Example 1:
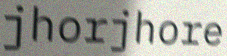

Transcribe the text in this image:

jhorjhore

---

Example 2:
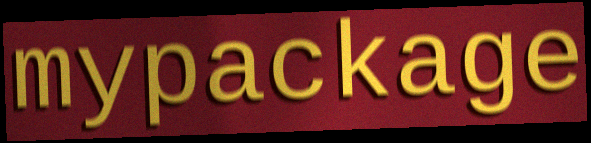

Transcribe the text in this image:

mypackage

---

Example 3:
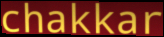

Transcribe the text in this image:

chakkar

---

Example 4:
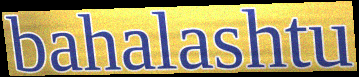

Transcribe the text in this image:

bahalashtu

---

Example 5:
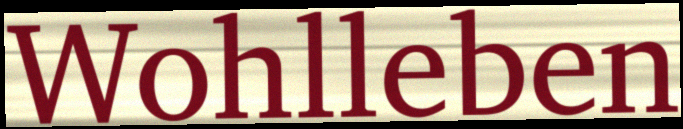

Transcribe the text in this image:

Wohlleben